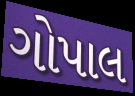
ગોપાલ